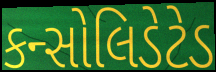
કન્સોલિડેટેડ